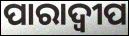
ପାରାଦ୍ୱୀପ